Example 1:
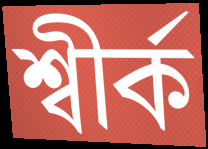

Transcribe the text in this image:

শ্বীৰ্ক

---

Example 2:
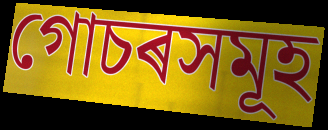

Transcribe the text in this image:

গোচৰসমূহ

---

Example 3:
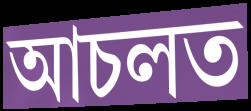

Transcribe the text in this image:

আচলত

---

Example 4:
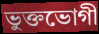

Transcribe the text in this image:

ভুক্তভোগী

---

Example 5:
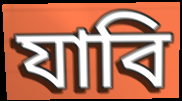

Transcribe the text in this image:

যাবি